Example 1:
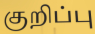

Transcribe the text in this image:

குறிப்பு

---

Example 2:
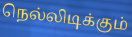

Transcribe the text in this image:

நெல்லிடிக்கும்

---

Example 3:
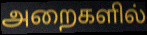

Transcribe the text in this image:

அறைகளில்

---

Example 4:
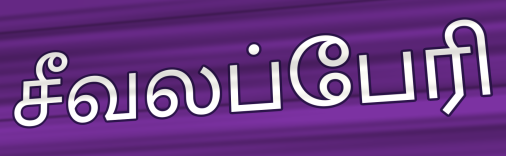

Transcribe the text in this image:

சீவலப்பேரி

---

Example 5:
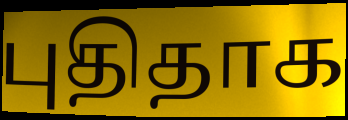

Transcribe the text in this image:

புதிதாக